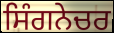
ਸਿੰਗਨੇਚਰ